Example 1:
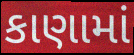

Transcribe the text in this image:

કાણામાં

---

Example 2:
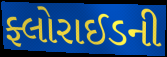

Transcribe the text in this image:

ફ્લોરાઈડની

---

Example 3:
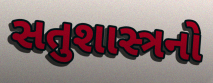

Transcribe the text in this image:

સતુશાસ્ત્રનો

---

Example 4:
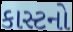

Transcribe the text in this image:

કાસ્ટનો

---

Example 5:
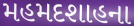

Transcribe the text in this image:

મહમદશાહના